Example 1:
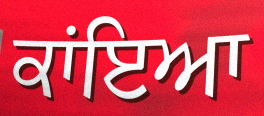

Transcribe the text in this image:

ਕਾਂਇਆ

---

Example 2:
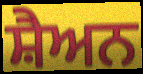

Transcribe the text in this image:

ਸ਼ੈਅਨ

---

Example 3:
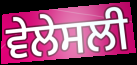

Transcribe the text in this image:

ਵੇਲੇਸਲੀ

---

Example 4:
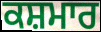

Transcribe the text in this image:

ਕਸ਼ਮਾਰ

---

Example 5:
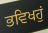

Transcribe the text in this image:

ਭਵਿਖਹੁਂ